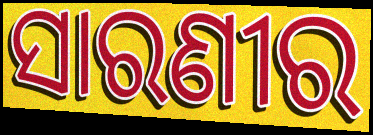
ସାରଣୀର